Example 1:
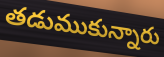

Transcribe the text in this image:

తడుముకున్నారు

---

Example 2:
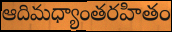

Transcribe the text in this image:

ఆదిమధ్యాంతరహితం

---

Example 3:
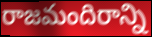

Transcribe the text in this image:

రాజమందిరాన్ని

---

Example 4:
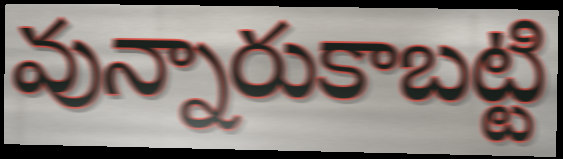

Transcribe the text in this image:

వున్నారుకాబట్టి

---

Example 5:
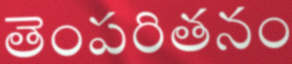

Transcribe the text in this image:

తెంపరితనం